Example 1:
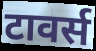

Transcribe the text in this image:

टावर्स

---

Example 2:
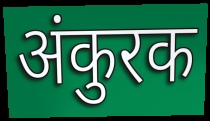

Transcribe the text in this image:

अंकुरक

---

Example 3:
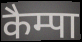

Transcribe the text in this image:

कैम्पा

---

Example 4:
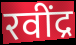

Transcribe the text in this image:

रवींद्र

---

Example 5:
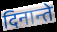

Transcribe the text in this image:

दिनान्ते